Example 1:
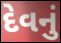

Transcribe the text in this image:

દેવનું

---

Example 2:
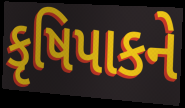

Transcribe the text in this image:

કૃષિપાકને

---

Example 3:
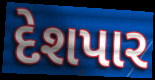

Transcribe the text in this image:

દેશપાર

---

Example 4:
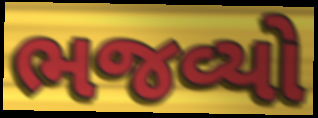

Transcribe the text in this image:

ભજવ્યો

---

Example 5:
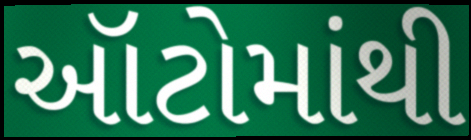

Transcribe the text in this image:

ઑટોમાંથી